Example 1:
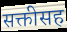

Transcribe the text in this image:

सक्तीसह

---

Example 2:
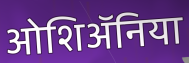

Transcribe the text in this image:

ओशिॲनिया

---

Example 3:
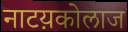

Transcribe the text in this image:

नाटय़कोलाज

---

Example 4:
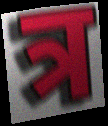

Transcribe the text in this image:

त्र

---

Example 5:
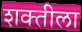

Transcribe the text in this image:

शक्तीला